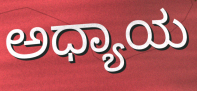
ಅಧ್ಯಾಯ